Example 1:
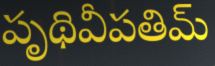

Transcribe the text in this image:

పృథివీపతిమ్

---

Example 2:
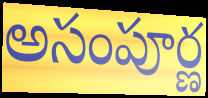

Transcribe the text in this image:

అసంపూర్ణ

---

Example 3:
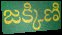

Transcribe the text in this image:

జక్కిణి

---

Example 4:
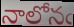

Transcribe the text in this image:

నాలోనఁ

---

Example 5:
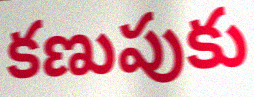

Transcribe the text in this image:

కణుపుకు